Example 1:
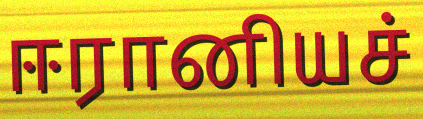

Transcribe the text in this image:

ஈரானியச்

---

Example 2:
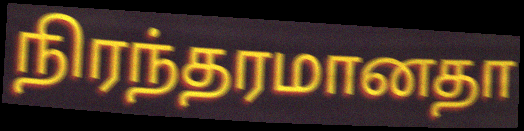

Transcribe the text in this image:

நிரந்தரமானதா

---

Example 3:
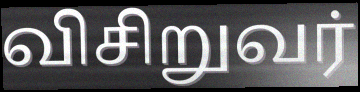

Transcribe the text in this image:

விசிறுவர்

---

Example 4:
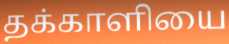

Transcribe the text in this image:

தக்காளியை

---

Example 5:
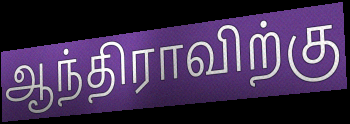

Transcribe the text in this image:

ஆந்திராவிற்கு